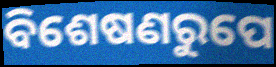
ବିଶେଷଣରୁପେ